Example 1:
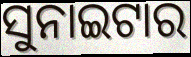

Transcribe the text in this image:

ସୁନାଇଟାର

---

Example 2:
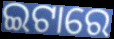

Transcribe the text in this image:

ଇଟାରେ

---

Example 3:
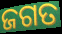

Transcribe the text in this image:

ଜଗତ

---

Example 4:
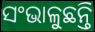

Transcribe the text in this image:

ସଂଭାଳୁଛନ୍ତି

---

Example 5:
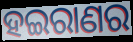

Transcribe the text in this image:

ହଇରାଣର